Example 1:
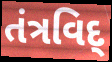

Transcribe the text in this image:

તંત્રવિદ્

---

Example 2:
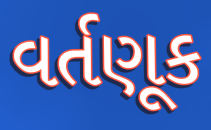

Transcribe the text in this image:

વર્તણૂક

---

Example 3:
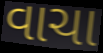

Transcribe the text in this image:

વાચા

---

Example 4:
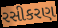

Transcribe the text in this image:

રસીકરણ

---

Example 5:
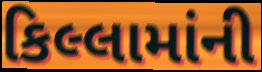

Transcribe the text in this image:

કિલ્લામાંની